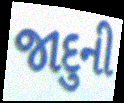
જાદુની